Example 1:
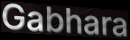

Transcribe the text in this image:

Gabhara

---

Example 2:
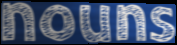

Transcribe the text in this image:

nouns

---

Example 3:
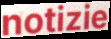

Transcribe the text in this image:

notizie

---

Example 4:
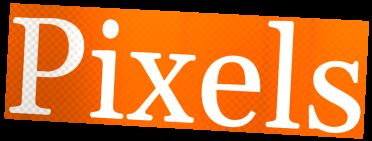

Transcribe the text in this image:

Pixels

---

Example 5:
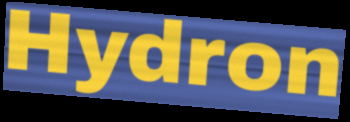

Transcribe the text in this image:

Hydron